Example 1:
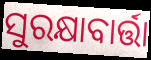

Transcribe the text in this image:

ସୁରକ୍ଷାବାର୍ତ୍ତା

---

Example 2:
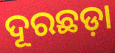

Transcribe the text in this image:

ଦୂରଛଡ଼ା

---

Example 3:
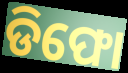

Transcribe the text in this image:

ଡିଫୋ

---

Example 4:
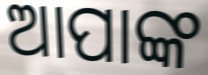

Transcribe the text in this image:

ଆପାଙ୍କ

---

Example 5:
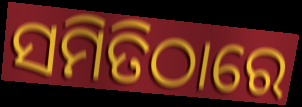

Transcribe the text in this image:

ସମିତିଠାରେ